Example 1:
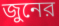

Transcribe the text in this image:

জুনের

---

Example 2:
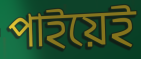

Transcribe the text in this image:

পাইয়েই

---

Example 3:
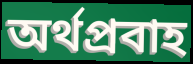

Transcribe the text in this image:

অর্থপ্রবাহ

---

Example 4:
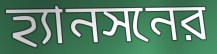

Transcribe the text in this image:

হ্যানসনের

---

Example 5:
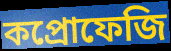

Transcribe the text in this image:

কপ্রোফেজি